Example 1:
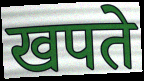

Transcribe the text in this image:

खपते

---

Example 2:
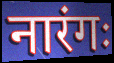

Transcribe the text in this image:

नारंगः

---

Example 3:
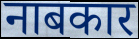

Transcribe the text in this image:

नाबकार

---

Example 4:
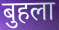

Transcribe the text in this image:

बुहला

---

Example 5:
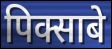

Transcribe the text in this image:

पिक्साबे